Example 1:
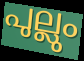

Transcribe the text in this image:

പുല്ലും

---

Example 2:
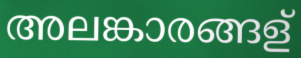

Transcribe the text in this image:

അലങ്കാരങ്ങള്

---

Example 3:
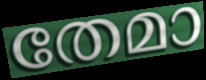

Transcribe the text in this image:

തേമാ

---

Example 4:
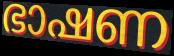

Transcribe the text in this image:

ഭാഷണ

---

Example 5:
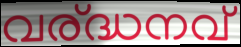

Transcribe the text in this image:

വര്ദ്ധനവ്